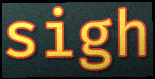
sigh